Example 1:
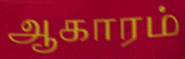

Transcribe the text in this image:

ஆகாரம்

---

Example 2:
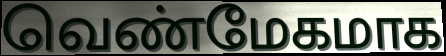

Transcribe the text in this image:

வெண்மேகமாக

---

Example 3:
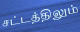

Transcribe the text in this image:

சட்டத்திலும்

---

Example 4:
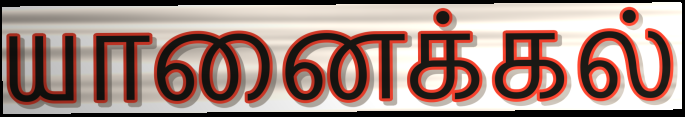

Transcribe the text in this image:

யானைக்கல்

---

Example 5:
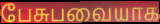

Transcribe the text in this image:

பேசுபவையாக